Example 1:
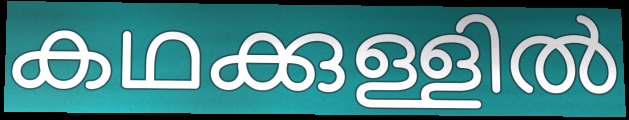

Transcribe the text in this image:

കഥക്കുള്ളിൽ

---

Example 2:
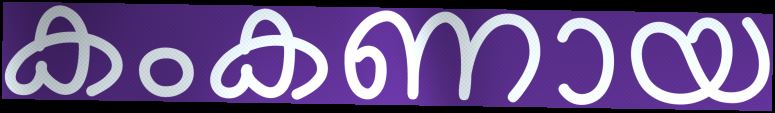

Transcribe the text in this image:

കംകണായ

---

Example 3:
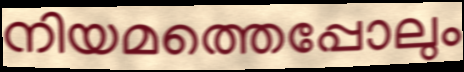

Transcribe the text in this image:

നിയമത്തെപ്പോലും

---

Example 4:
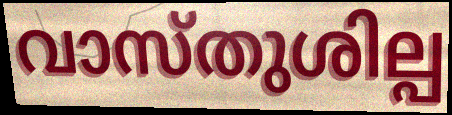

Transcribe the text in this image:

വാസ്തുശില്പ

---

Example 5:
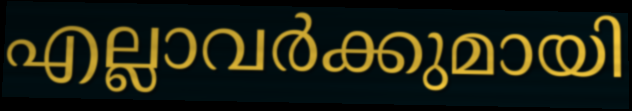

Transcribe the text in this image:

എല്ലാവർക്കുമായി